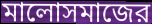
মালোসমাজের